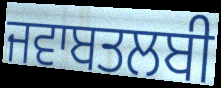
ਜਵਾਬਤਲਬੀ